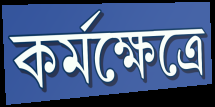
কর্মক্ষেত্রে